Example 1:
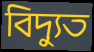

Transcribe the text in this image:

বিদ্যুত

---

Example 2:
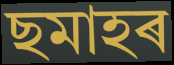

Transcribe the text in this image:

ছমাহৰ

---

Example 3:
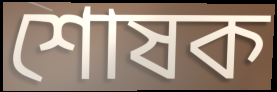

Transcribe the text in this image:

শোষক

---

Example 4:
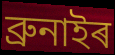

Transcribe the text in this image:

ব্ৰুনাইৰ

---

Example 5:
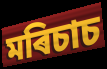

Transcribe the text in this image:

মৰিচাচ